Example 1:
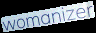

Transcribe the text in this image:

womanizer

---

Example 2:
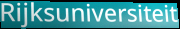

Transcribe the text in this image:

Rijksuniversiteit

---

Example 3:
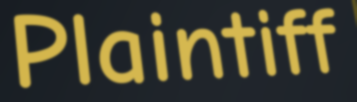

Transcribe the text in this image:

Plaintiff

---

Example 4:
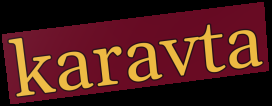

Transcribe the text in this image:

karavta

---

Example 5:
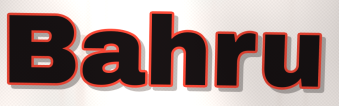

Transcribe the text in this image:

Bahru